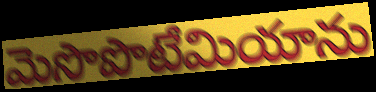
మెసొపొటేమియాను